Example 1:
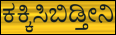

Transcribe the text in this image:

ಕಕ್ಕಿಸಿಬಿಡ್ತೀನಿ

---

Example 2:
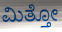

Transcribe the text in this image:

ಮಿತ್ತೋ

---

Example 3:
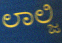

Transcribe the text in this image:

ಲಾಲ್ಜಿ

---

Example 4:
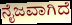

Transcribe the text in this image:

ನೈಜವಾಗಿದೆ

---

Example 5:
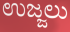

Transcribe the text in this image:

ಉಜ್ಜಲು